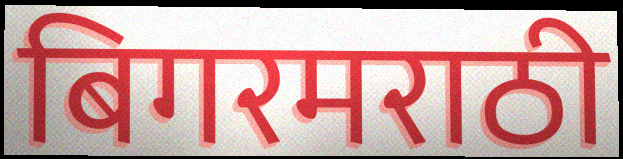
बिगरमराठी